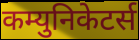
कम्युनिकेटर्स